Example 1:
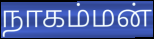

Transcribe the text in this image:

நாகம்மன்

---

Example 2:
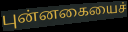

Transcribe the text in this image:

புன்னகையைச்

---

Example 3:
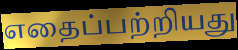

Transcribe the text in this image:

எதைப்பற்றியது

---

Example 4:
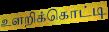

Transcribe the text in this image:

உளறிக்கொட்டி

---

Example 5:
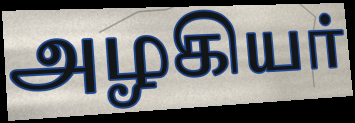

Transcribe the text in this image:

அழகியர்